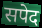
सपेद